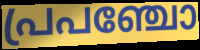
പ്രപഞ്ചോ